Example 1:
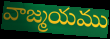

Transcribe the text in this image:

వాజ్మయము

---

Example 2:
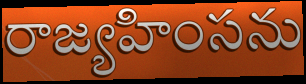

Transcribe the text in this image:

రాజ్యహింసను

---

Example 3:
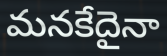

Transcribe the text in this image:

మనకేదైనా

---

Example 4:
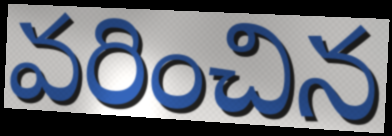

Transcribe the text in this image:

వరించిన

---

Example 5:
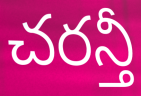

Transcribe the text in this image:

చరన్తీ